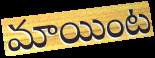
మాయింట